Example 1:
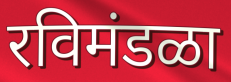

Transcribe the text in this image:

रविमंडळा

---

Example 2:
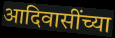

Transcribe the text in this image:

आदिवासींच्या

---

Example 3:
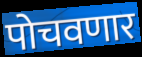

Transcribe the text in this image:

पोचवणार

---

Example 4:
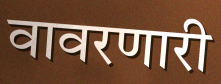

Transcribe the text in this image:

वावरणारी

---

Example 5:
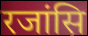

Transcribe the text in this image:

रजांसि